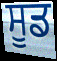
ਸੂਡ